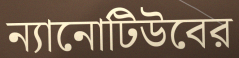
ন্যানোটিউবের